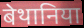
बेथानिया